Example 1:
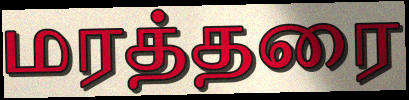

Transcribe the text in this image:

மரத்தரை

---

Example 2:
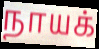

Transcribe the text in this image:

நாயக்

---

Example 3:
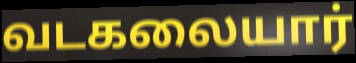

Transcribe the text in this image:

வடகலையார்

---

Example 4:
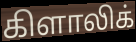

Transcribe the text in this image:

கிளாலிக்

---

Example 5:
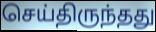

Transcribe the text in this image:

செய்திருந்தது